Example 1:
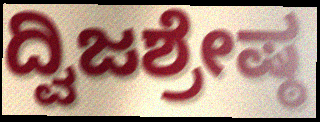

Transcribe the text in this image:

ದ್ವಿಜಶ್ರೇಷ್ಠ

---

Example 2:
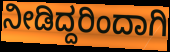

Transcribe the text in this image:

ನೀಡಿದ್ದರಿಂದಾಗಿ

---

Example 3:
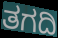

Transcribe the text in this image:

ತಗದಿ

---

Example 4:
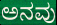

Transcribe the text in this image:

ಅನವು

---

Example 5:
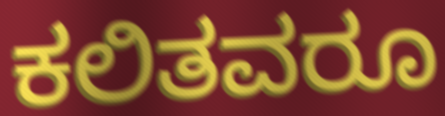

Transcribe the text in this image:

ಕಲಿತವರೂ